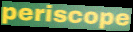
periscope